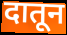
दातून